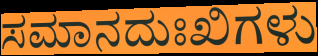
ಸಮಾನದುಃಖಿಗಳು